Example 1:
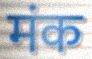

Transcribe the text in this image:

मंक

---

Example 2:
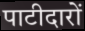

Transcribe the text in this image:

पाटीदारों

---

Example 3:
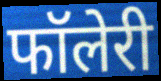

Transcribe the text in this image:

फॉलेरी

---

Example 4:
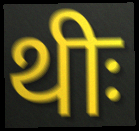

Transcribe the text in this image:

थीः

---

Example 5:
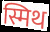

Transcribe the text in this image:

स्मिथ